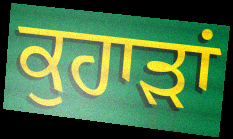
ਕੁਹਾੜਾਂ